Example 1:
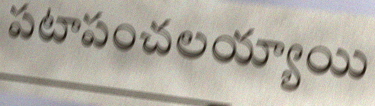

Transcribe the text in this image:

పటాపంచలయ్యాయి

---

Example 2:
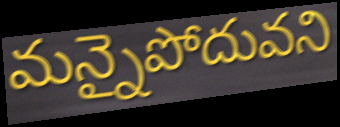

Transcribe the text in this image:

మన్నైపోదువని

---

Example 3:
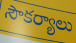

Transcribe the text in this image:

సౌకర్యాలు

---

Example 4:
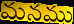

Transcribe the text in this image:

మనము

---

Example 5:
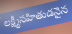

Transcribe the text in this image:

లక్ష్మీసహితుడనైన